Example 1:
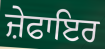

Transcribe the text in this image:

ਜ਼ੇਫਾਇਰ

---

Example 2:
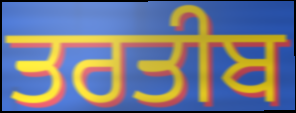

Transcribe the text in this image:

ਤਰਤੀਬ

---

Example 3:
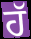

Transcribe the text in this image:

ਹੱ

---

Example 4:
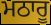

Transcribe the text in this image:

ਮਠਾਰੂ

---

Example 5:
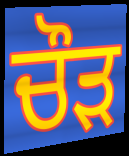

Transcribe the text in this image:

ਚੌੜ